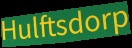
Hulftsdorp